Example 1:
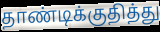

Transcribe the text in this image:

தாண்டிக்குதித்து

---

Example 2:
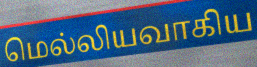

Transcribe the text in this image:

மெல்லியவாகிய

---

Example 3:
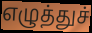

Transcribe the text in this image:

எழுத்துச்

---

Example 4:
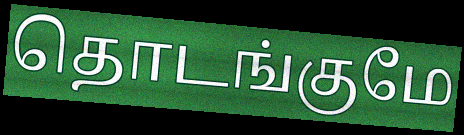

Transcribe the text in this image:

தொடங்குமே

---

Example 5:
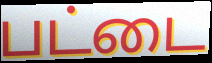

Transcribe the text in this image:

பட்டை